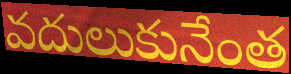
వదులుకునేంత